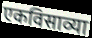
एकविसाव्या